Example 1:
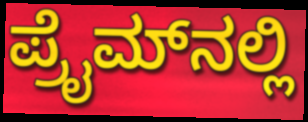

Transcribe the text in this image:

ಪ್ರೈಮ್‌ನಲ್ಲಿ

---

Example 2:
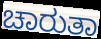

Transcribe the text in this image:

ಚಾರುತಾ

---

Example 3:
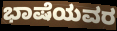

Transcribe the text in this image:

ಭಾಷೆಯವರ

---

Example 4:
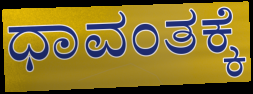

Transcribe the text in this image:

ಧಾವಂತಕ್ಕೆ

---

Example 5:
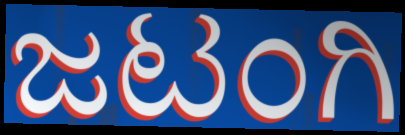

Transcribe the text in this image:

ಜಟಂಗಿ